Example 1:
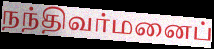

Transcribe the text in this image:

நந்திவர்மனைப்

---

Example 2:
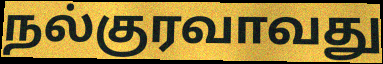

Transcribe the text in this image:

நல்குரவாவது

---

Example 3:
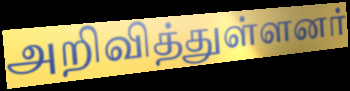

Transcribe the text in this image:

அறிவித்துள்ளனர்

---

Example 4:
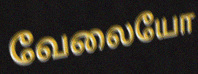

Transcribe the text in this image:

வேலையோ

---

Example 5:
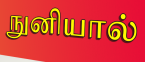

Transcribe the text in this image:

நுனியால்